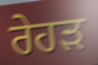
ਰੇਹੜ